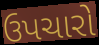
ઉપચારો